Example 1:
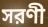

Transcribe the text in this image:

সরণী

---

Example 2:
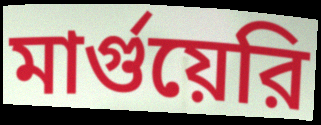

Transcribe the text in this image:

মার্গুয়েরি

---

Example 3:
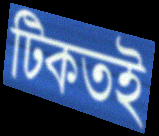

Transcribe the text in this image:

টিকতই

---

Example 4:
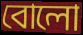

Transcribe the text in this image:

বোলো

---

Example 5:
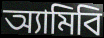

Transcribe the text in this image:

অ্যামিবি